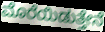
ಮೊರೆಯಿಡುತ್ತೇನೆ